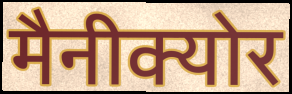
मैनीक्योर